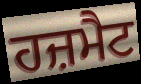
ਹਜ਼ਮੈਟ